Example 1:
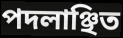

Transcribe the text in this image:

পদলাঞ্ছিত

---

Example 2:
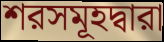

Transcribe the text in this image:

শরসমূহদ্বারা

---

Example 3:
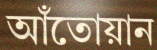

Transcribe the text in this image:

আঁতোয়ান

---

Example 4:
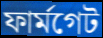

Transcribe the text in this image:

ফার্মগেট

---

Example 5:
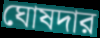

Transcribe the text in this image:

ঘোষদার